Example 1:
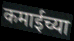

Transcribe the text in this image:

कमाईच्या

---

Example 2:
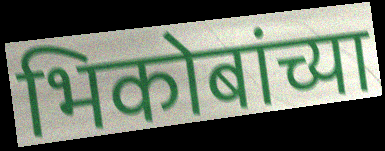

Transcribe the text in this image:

भिकोबांच्या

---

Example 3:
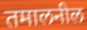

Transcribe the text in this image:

तमालनील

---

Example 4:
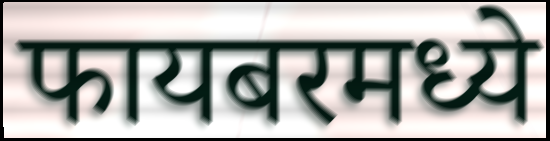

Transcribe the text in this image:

फायबरमध्ये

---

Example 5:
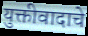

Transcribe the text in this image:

युक्तीवादाचे